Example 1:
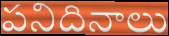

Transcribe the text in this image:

పనిదినాలు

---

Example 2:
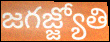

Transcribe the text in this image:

జగజ్జ్యోతి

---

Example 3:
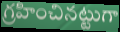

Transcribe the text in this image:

గ్రహించినట్టుగా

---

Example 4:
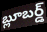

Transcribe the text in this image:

బ్లూబర్డ్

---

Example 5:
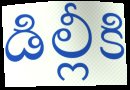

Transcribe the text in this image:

డిల్లీకి